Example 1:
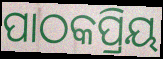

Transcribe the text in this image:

ପାଠକପ୍ରିୟ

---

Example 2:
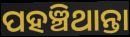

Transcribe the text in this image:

ପହଞ୍ଚିଥାନ୍ତା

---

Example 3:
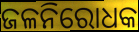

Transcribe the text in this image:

ଜଳନିରୋଧକ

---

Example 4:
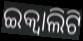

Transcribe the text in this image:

ଇକ୍ୱାଲିଟି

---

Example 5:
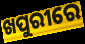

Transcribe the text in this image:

ଖପୁରୀରେ